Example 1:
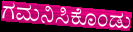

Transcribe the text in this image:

ಗಮನಿಸಿಕೊಂಡು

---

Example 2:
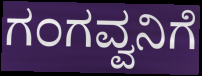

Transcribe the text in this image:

ಗಂಗವ್ವನಿಗೆ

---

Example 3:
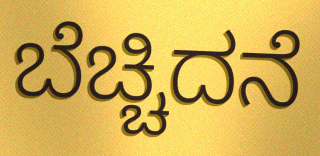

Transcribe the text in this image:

ಬೆಚ್ಚಿದನೆ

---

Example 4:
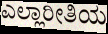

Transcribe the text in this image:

ಎಲ್ಲಾರೀತಿಯ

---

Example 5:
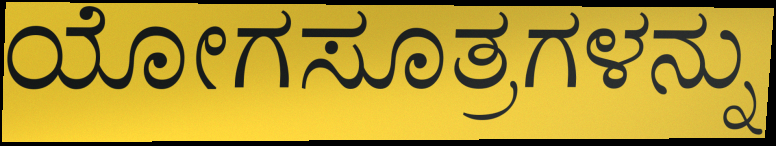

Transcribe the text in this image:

ಯೋಗಸೂತ್ರಗಳನ್ನು